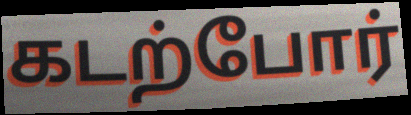
கடற்போர்